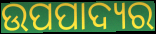
ଉପପାଦ୍ୟର